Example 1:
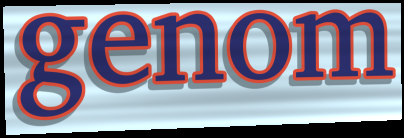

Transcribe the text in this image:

genom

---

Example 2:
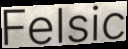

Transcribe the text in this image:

Felsic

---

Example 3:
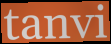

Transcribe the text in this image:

tanvi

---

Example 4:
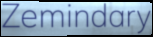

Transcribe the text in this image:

Zemindary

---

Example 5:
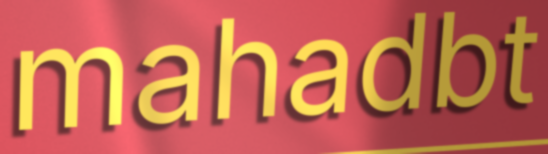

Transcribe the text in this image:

mahadbt